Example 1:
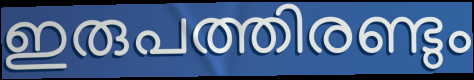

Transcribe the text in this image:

ഇരുപത്തിരണ്ടും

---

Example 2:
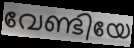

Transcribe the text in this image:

വേണ്ടിയേ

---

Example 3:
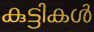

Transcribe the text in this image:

കുട്ടികൾ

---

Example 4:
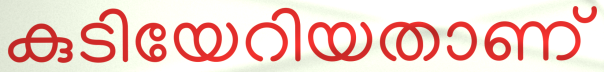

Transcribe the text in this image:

കുടിയേറിയതാണ്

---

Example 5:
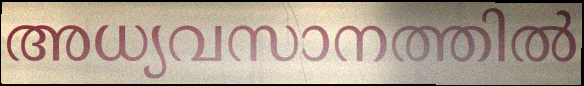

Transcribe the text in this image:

അധ്യവസാനത്തിൽ